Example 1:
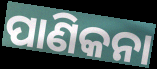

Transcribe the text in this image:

ପାଣିକନା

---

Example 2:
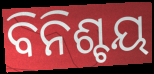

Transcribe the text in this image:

ବିନିଶ୍ଚୟ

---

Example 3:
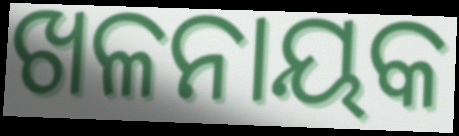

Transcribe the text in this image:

ଖଳନାୟକ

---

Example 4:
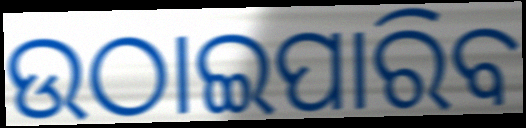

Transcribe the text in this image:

ଉଠାଇପାରିବ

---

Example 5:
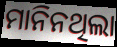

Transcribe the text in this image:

ମାନିନଥିଲା